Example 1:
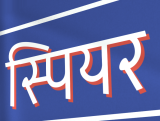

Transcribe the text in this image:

स्पियर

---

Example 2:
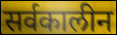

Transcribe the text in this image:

सर्वकालीन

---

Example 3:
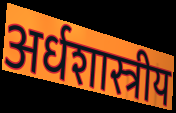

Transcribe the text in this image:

अर्धशास्त्रीय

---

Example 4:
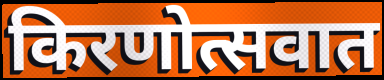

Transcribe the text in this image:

किरणोत्सवात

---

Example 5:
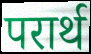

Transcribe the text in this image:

परार्थ